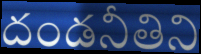
దండనీతిని